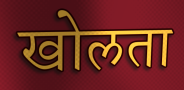
खोलता